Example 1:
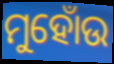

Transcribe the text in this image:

ମୁହୋଁଉ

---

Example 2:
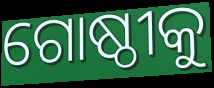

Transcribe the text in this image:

ଗୋଷ୍ଠୀକୁ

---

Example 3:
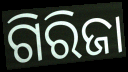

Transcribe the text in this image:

ଗିରିଜା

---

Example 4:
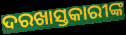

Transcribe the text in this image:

ଦରଖାସ୍ତକାରୀଙ୍କ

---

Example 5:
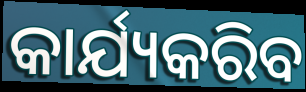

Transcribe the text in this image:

କାର୍ଯ୍ୟକରିବ